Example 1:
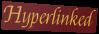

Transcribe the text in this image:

Hyperlinked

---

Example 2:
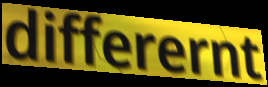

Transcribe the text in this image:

differernt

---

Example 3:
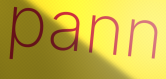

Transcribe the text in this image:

pann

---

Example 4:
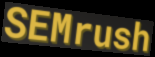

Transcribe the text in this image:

SEMrush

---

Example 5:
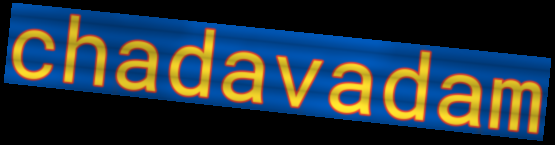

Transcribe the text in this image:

chadavadam